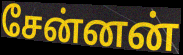
சேன்னன்